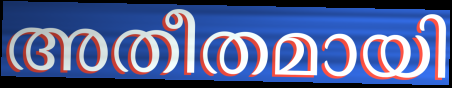
അതീതമായി